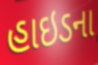
હાઇડના